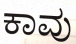
ಕಾವು